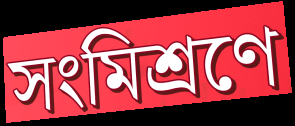
সংমিশ্রণে